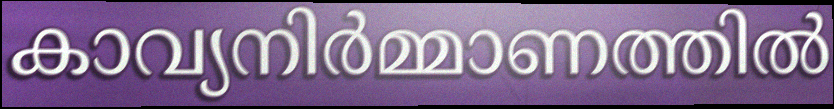
കാവ്യനിർമ്മാണത്തിൽ